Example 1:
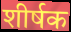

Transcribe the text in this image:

शीर्षक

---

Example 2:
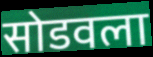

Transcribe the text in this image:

सोडवला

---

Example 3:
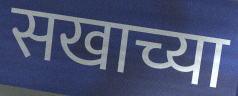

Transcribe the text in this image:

सखाच्या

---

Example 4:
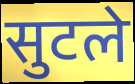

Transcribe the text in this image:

सुटले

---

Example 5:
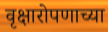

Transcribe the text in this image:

वृक्षारोपणाच्या